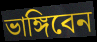
ভাঙ্গিবেন